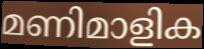
മണിമാളിക